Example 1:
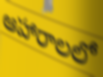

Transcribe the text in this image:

ఆహారాలలో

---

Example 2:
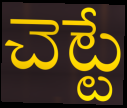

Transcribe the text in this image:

చెట్టే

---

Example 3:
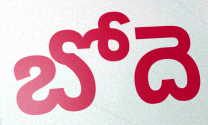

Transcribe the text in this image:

బోదె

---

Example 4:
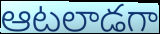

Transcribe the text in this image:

ఆటలాడగా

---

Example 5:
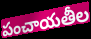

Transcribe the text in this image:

పంచాయతీల